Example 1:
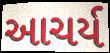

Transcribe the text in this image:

આચર્ય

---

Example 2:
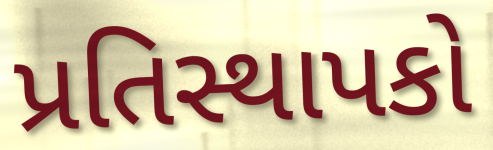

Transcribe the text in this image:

પ્રતિસ્થાપકો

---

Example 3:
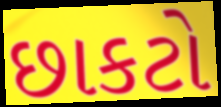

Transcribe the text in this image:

છાકટો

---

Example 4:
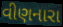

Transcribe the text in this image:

વીણનારા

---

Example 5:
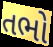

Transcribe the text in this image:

તભો